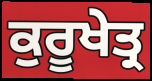
ਕੁਰੂਖੇਤ੍ਰ